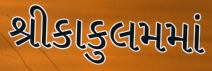
શ્રીકાકુલમમાં